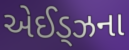
એઈડ્ઝના